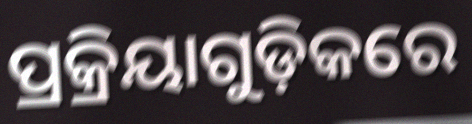
ପ୍ରକ୍ରିୟାଗୁଡ଼ିକରେ